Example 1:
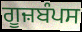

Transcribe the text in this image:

ਗੂਜ਼ਬੰਪਸ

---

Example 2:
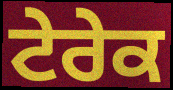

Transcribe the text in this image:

ਟੇਰੇਕ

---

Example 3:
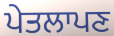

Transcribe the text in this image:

ਪੇਤਲਾਪਣ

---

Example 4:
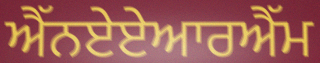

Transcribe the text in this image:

ਐੱਨਏਏਆਰਐੱਮ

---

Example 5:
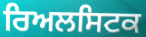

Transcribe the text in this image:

ਰਿਅਲਸਿਟਕ